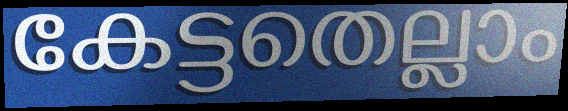
കേട്ടതെല്ലാം